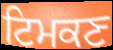
ਟਿਮਕਣ